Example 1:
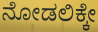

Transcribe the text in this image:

ನೋಡಲಿಕ್ಕೇ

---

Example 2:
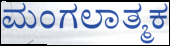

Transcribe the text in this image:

ಮಂಗಲಾತ್ಮಕ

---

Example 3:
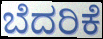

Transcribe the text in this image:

ಬೆದರಿಕೆ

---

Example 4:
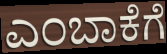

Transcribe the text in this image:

ಎಂಬಾಕೆಗೆ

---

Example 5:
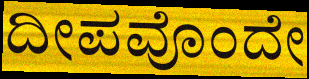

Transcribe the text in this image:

ದೀಪವೊಂದೇ